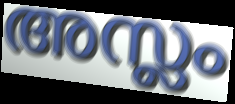
അസ്ലം